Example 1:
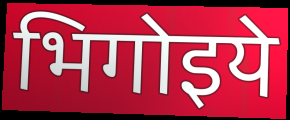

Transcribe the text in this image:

भिगोइये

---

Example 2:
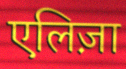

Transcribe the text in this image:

एलिज़ा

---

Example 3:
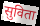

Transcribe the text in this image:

सुविता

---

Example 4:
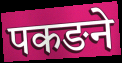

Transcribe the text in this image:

पकङने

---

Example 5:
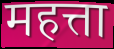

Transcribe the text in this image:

महत्ता